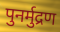
पुनर्मुद्रण